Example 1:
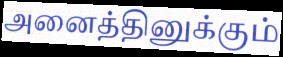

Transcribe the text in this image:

அனைத்தினுக்கும்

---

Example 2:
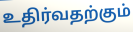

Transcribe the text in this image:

உதிர்வதற்கும்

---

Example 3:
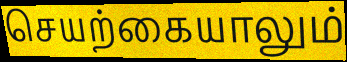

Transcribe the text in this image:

செயற்கையாலும்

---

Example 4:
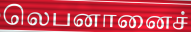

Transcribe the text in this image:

லெபனானைச்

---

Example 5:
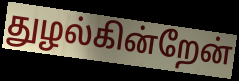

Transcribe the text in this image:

துழல்கின்றேன்